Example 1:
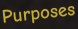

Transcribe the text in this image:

Purposes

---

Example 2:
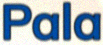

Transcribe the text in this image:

Pala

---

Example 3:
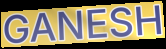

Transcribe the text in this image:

GANESH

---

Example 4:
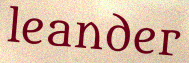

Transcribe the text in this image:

leander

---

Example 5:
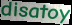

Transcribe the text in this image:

disatoy